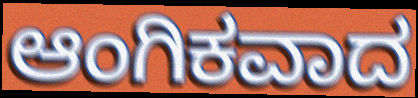
ಆಂಗಿಕವಾದ